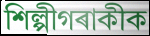
শিল্পীগৰাকীক